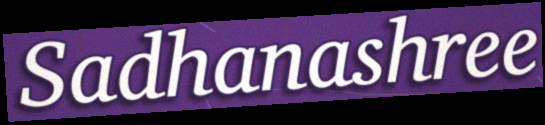
Sadhanashree